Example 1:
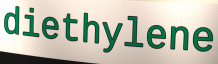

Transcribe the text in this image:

diethylene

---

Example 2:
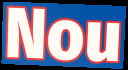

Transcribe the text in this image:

Nou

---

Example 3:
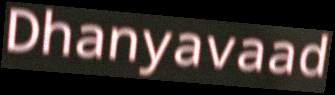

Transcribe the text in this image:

Dhanyavaad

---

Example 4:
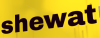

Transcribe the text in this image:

shewat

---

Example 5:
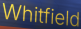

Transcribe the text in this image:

Whitfield